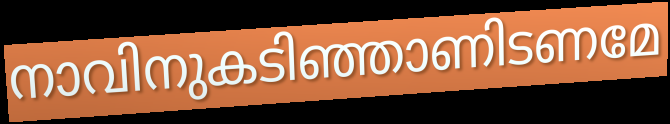
നാവിനുകടിഞ്ഞാണിടണമേ